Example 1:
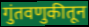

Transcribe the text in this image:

गुंतवणुकीतून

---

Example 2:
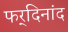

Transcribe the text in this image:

फर्दिनांद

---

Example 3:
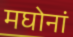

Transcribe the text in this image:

मघोनां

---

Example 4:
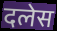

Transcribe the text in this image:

दलेस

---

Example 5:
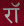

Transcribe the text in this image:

रॉ